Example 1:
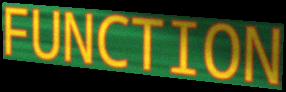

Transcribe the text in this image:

FUNCTION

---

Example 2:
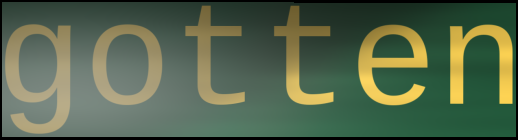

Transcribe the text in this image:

gotten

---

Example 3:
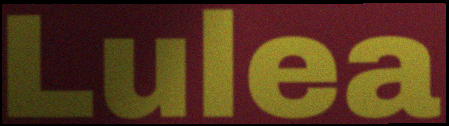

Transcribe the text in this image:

Lulea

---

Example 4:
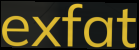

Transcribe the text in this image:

exfat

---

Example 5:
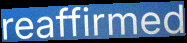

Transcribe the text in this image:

reaffirmed